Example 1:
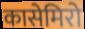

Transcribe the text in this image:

कासेमिरो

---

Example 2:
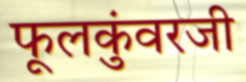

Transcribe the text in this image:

फूलकुंवरजी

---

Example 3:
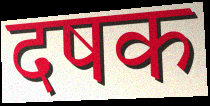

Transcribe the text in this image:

दषक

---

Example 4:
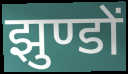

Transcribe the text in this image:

झुण्डों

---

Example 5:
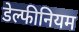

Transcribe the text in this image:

डेल्फीनियम